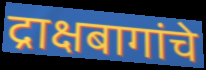
द्राक्षबागांचे